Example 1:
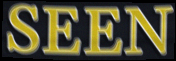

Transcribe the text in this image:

SEEN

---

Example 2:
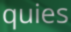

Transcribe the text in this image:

quies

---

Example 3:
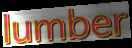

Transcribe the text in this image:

lumber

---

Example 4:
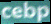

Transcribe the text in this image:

cebp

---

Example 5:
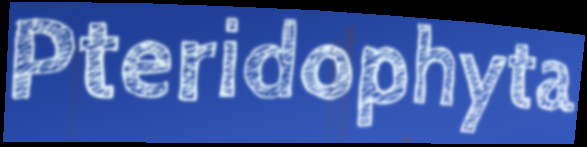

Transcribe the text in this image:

Pteridophyta